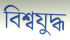
বিশ্বযুদ্ধ